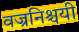
वज्रनिश्चयी